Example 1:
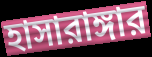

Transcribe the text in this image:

হাসারাঙ্গার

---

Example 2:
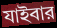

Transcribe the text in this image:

যাইবার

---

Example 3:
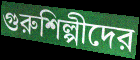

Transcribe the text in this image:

গুরুশিল্পীদের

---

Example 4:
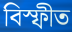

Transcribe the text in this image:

বিস্ফীত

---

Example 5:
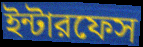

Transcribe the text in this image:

ইন্টারফেস